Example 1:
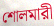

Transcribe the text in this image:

শোলমারী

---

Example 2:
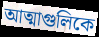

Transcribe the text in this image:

আত্মাগুলিকে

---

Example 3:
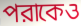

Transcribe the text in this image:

পরাকেও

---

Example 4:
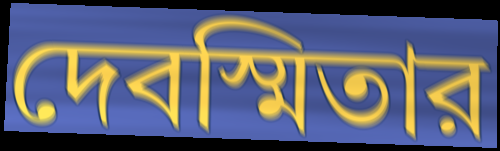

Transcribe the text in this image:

দেবস্মিতার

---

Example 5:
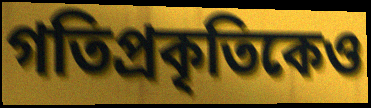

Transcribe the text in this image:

গতিপ্রকৃতিকেও